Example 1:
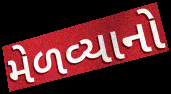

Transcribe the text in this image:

મેળવ્યાનો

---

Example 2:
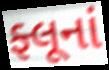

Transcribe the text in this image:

ફ્લૂનાં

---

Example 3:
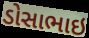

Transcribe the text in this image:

ડોસાભાઇ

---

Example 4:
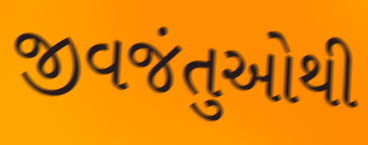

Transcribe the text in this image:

જીવજંતુઓથી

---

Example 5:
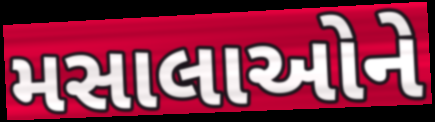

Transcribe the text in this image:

મસાલાઓને